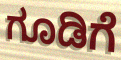
ಗೂಡಿಗೆ